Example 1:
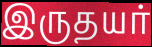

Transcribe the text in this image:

இருதயர்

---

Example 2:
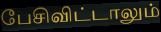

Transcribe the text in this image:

பேசிவிட்டாலும்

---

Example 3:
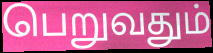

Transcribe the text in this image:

பெறுவதும்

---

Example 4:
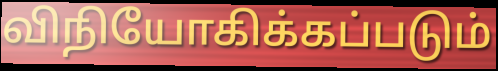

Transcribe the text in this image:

விநியோகிக்கப்படும்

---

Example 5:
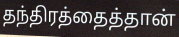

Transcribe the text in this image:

தந்திரத்தைத்தான்